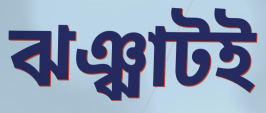
ঝঞ্ঝাটই